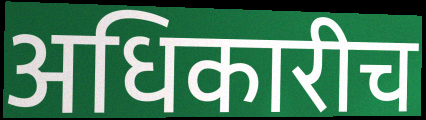
अधिकारीच